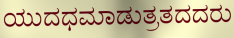
ಯುದಧಮಾಡುತ್ರತದದರು